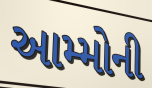
આમ્મોની